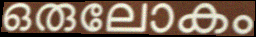
ഒരുലോകം